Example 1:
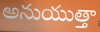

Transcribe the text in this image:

అనుయుత్తా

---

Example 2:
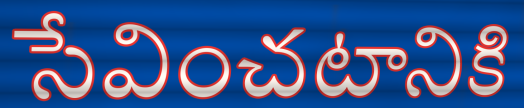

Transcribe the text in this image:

సేవించటానికి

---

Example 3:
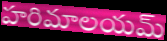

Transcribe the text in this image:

హరిమాలయమ్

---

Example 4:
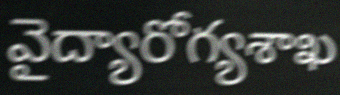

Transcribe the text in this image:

వైద్యారోగ్యశాఖ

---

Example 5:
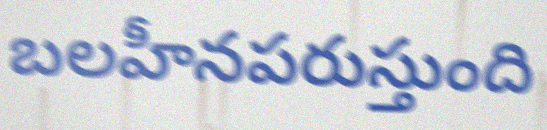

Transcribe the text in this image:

బలహీనపరుస్తుంది